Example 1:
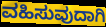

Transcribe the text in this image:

ವಹಿಸುವುದಾಗಿ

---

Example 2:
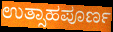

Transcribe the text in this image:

ಉತ್ಸಾಹಪೂರ್ಣ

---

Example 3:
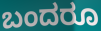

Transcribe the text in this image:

ಬಂದರೂ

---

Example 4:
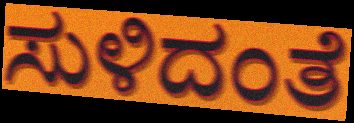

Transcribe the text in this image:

ಸುಳಿದಂತೆ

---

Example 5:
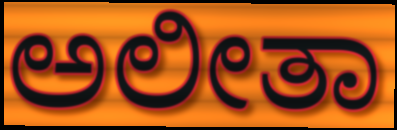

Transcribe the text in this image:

ಅಲೀತಾ